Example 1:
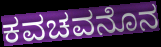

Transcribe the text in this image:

ಕವಚವನೊನ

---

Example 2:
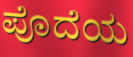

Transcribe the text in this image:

ಪೊದೆಯ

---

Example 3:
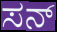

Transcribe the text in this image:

ಸನ್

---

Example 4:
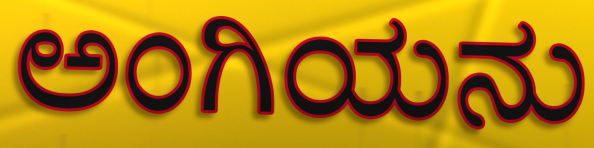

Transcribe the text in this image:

ಅಂಗಿಯನು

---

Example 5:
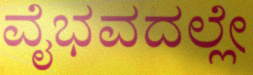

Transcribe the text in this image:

ವೈಭವದಲ್ಲೇ